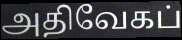
அதிவேகப்